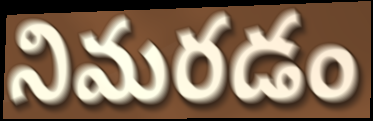
నిమరడం